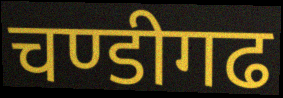
चण्डीगढ